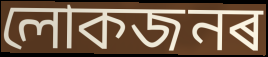
লোকজনৰ